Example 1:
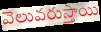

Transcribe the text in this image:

వెలువరుస్తాయి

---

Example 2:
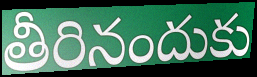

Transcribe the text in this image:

తీరినందుకు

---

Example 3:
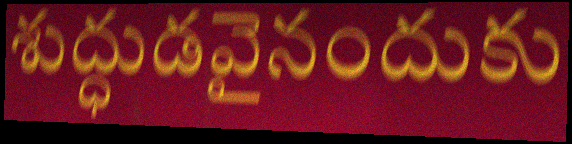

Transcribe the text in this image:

శుద్ధుడవైనందుకు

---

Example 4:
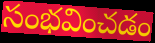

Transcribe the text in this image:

సంభవించడం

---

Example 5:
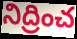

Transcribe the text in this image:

నిద్రించ